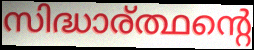
സിദ്ധാര്ത്ഥന്റെ